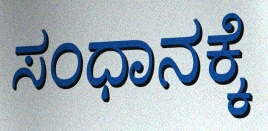
ಸಂಧಾನಕ್ಕೆ